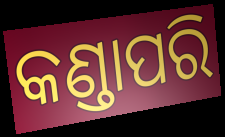
କଣ୍ଡାପରି